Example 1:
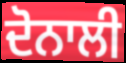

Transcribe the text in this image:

ਦੋਨਾਲੀ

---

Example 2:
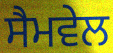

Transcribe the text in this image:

ਸੈਮਵੇਲ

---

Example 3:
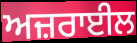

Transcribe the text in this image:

ਅਜ਼ਰਾਈਲ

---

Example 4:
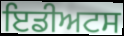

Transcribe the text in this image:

ਇਡੀਅਟਸ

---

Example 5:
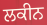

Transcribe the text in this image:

ਲਕੀਨ